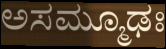
ಅಸಮ್ಮೂಢಃ